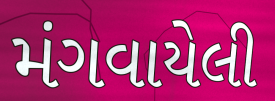
મંગવાયેલી